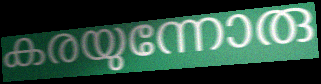
കരയുന്നോരു